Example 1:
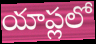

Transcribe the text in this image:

యాప్లలో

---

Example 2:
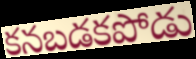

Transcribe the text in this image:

కనబడకపోడు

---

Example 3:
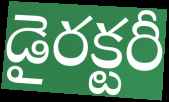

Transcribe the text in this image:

డైరక్టరీ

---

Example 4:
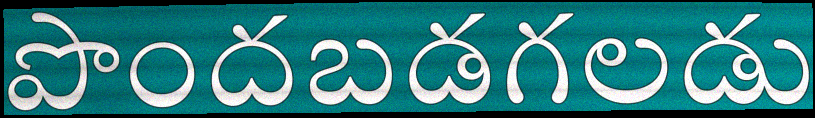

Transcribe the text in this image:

పొందబడగలడు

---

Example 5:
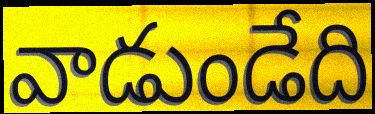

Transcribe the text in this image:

వాడుండేది